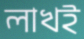
লাখই